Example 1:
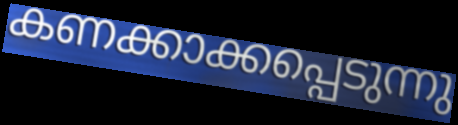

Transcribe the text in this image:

കണക്കാക്കപ്പെടുന്നു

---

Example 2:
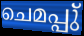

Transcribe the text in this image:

ചെമപ്പു്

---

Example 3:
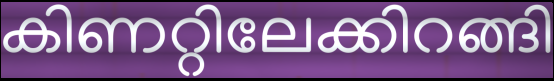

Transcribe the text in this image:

കിണറ്റിലേക്കിറങ്ങി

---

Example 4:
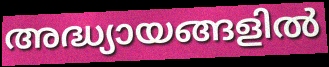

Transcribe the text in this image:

അദ്ധ്യായങ്ങളിൽ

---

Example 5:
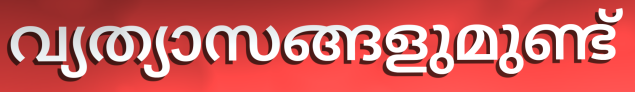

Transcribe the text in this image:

വ്യത്യാസങ്ങളുമുണ്ട്